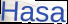
Hasa